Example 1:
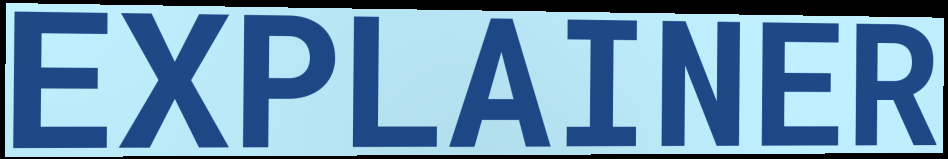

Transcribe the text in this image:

EXPLAINER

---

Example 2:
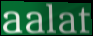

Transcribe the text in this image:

aalat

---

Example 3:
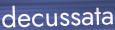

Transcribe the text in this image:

decussata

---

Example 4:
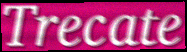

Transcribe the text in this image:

Trecate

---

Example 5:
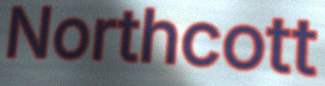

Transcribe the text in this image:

Northcott